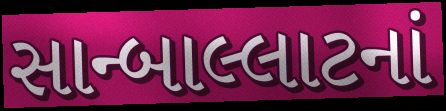
સાન્બાલ્લાટનાં